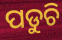
ପଡୁଚି